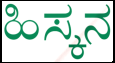
ಹಿಸ್ಕನ